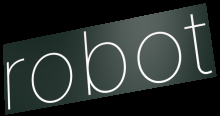
robot